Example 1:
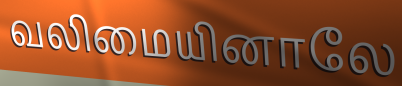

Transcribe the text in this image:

வலிமையினாலே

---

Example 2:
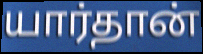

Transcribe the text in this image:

யார்தான்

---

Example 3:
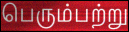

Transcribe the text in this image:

பெரும்பற்று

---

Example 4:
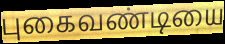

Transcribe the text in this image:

புகைவண்டியை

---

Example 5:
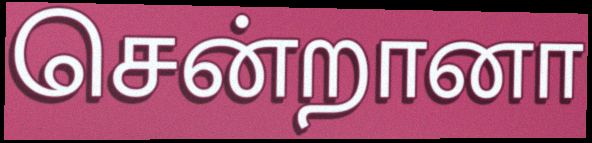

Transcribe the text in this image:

சென்றானா